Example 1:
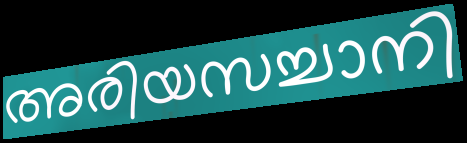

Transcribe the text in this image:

അരിയസച്ചാനി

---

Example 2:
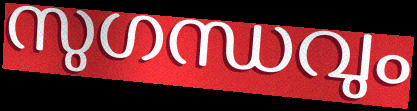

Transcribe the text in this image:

സുഗന്ധവും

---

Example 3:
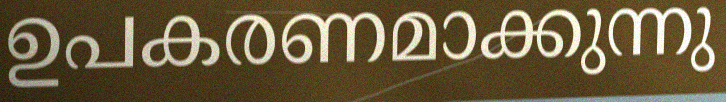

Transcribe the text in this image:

ഉപകരണമാക്കുന്നു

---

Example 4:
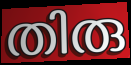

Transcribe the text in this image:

തിരു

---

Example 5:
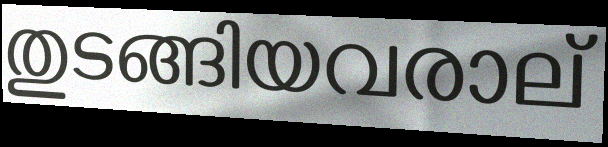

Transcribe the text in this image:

തുടങ്ങിയവരാല്